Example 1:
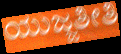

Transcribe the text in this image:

ಯುಜ್ಜತೀತಿ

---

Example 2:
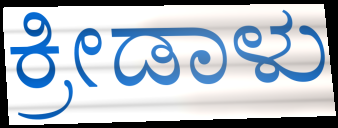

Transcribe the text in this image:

ಕ್ರೀಡಾಳು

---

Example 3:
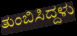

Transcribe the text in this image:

ತುಂಬಿಸಿದ್ದಳು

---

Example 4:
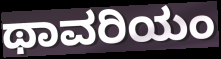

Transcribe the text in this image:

ಥಾವರಿಯಂ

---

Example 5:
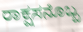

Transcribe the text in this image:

ರಾಕ್ಷಸನೊಬ್ಬ